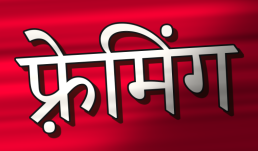
फ़्रेमिंग